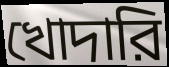
খোদারি